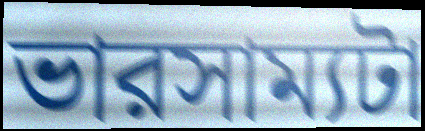
ভারসাম্যটা